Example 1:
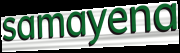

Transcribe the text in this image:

samayena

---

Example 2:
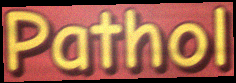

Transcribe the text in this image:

Pathol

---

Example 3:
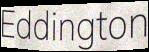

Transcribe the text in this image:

Eddington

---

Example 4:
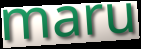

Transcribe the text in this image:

maru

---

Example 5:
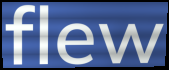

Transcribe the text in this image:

flew